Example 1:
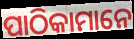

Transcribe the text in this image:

ପାଠିକାମାନେ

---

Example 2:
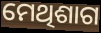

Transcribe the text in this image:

ମେଥିଶାଗ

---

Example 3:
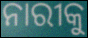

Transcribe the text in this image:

ନାରୀକୁ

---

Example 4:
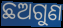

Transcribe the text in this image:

ଛଅଗୁଣ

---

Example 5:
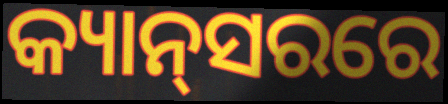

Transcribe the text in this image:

କ୍ୟାନ୍‌ସରରେ